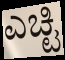
ಎಚ್ಟಿ